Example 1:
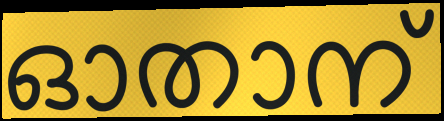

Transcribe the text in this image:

ഓതാന്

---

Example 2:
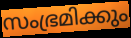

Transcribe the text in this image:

സംഭ്രമിക്കും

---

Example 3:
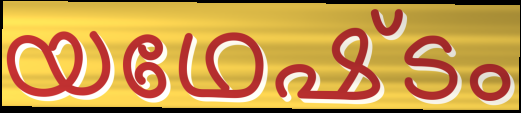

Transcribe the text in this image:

യഥേഷ്‌ടം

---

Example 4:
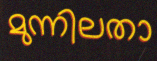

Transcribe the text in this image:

മുന്നിലതാ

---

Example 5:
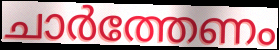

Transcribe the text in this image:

ചാർത്തേണം